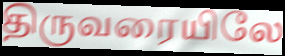
திருவரையிலே